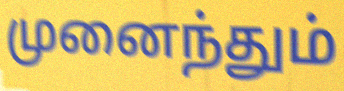
முனைந்தும்